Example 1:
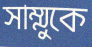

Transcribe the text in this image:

সাম্মুকে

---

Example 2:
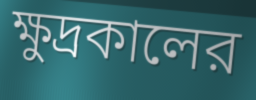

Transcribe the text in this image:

ক্ষুদ্রকালের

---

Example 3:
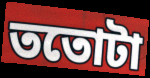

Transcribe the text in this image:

ততোটা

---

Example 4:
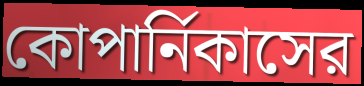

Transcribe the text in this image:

কোপার্নিকাসের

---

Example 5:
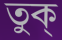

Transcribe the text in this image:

তুক্